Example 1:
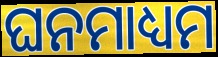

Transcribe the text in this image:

ଘନମାଧ୍ୟମ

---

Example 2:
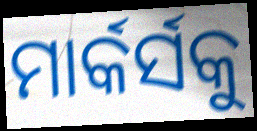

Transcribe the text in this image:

ମାର୍କର୍ସକୁ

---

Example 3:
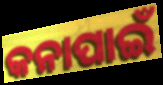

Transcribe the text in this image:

କନାପାଇଁ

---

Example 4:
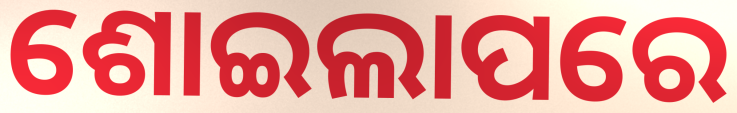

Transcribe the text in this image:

ଶୋଇଲାପରେ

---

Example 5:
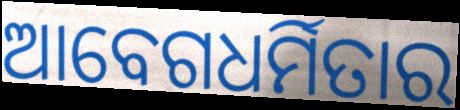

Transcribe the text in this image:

ଆବେଗଧର୍ମିତାର